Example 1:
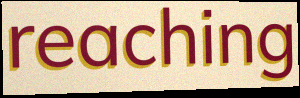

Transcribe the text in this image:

reaching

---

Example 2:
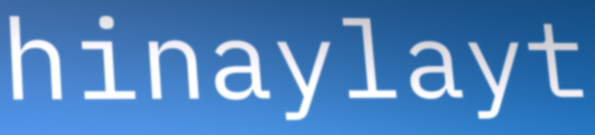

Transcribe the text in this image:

hinaylayt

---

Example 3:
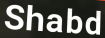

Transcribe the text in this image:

Shabd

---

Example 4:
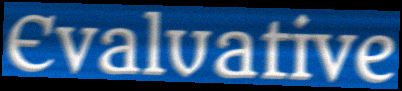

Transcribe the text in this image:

Evaluative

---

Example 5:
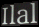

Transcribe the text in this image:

Ilal